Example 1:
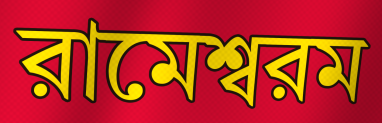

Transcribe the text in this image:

রামেশ্বরম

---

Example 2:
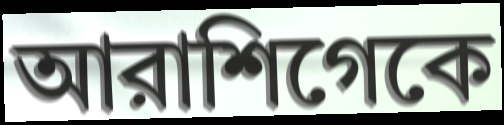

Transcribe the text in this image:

আরাশিগেকে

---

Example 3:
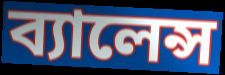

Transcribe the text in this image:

ব্যালেন্স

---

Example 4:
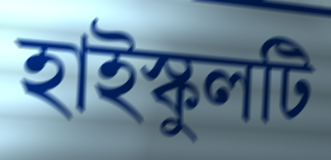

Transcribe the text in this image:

হাইস্কুলটি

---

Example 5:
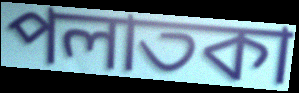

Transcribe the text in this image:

পলাতকা